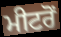
ਮੀਟਰੋਂ